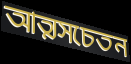
আত্মসচেতন